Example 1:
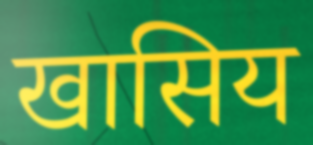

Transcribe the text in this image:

खासिय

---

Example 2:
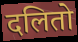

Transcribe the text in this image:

दलितो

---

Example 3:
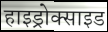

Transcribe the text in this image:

हाइड्रोक्साइड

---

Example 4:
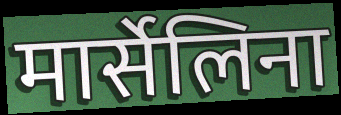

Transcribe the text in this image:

मार्सेलिना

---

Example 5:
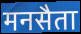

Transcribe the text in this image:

मनसैता